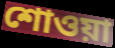
শোওয়া